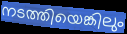
നടത്തിയെങ്കിലും